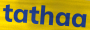
tathaa